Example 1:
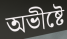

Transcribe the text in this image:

অভীষ্টে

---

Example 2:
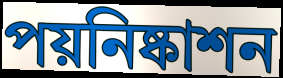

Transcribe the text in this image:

পয়নিষ্কাশন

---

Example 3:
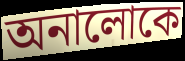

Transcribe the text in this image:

অনালোকে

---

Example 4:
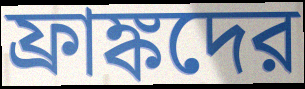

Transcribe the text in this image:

ফ্রাঙ্কদের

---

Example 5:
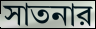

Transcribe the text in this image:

সাতনার